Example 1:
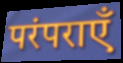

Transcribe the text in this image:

परंपराएँ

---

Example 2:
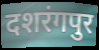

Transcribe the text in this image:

दशरंगपुर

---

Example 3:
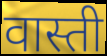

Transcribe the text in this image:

वास्ती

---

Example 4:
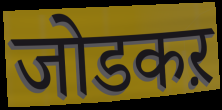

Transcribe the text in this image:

जोडकऱ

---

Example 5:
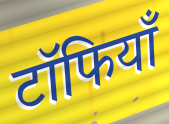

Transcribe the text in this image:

टॉफियाँ